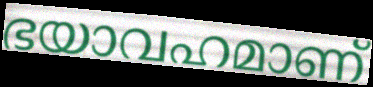
ഭയാവഹമാണ്